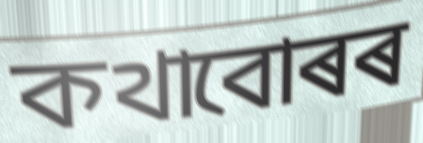
কথাবোৰৰ